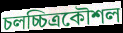
চলচ্চিত্রকৌশল